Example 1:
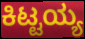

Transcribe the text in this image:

ಕಿಟ್ಟಯ್ಯ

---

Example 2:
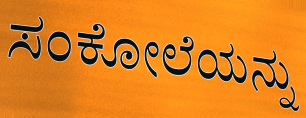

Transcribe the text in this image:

ಸಂಕೋಲೆಯನ್ನು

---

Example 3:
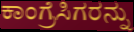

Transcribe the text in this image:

ಕಾಂಗ್ರೆಸಿಗರನ್ನು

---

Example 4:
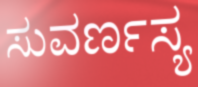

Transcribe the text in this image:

ಸುವರ್ಣಸ್ಯ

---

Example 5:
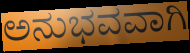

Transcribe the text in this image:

ಅನುಭವವಾಗಿ